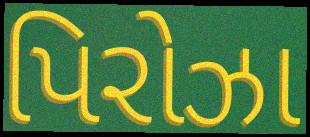
પિરોઝા